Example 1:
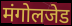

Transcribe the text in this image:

मंगोलजेड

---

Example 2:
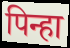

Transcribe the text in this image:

पिन्हा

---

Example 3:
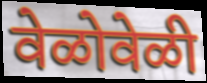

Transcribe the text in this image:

वेळोवेळी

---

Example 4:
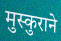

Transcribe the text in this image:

मुस्‍कुराने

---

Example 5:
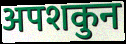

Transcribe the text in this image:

अपशकुन